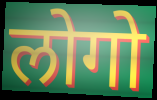
लोगो